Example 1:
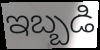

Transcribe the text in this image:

ఇబ్బడి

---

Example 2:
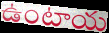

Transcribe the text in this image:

ఉంటాయ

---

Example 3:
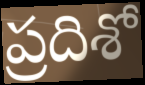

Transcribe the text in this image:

ప్రదిశో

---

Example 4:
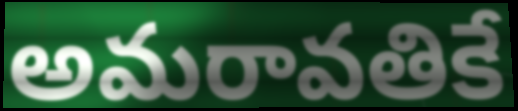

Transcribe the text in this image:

అమరావతికే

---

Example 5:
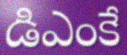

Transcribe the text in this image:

డిఎంకే